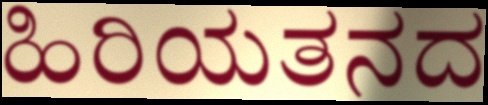
ಹಿರಿಯತನದ